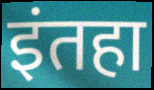
इंतहा